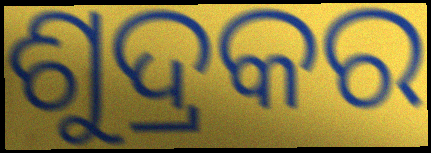
ଶୁଦ୍ରକର